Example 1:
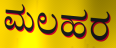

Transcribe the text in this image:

ಮಲಹರ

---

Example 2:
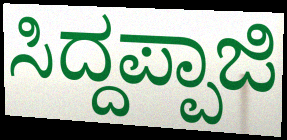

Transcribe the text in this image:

ಸಿದ್ದಪ್ಪಾಜಿ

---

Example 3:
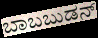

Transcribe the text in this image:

ಬಾಬಬುಡನ್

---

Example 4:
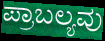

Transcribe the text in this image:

ಪ್ರಾಬಲ್ಯವು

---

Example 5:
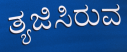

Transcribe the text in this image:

ತ್ಯಜಿಸಿರುವ